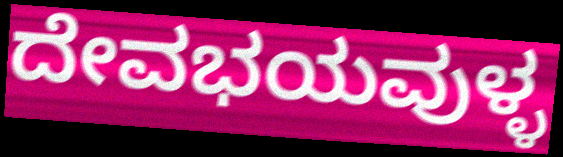
ದೇವಭಯವುಳ್ಳ